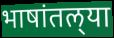
भाषांतल्या